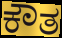
ಕೌತ